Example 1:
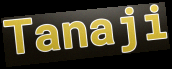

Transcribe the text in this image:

Tanaji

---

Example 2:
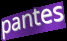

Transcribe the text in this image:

pantes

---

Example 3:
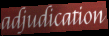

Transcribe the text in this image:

adjudication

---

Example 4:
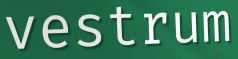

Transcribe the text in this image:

vestrum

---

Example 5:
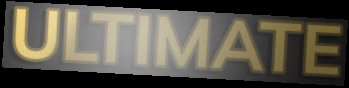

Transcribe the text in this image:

ULTIMATE